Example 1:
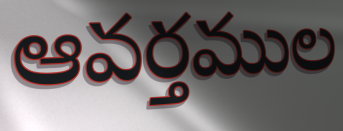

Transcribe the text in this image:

ఆవర్తముల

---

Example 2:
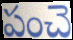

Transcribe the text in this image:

పంచె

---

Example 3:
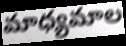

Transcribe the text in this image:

మాధ్యమాల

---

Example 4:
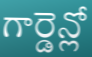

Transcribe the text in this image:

గార్డెన్లో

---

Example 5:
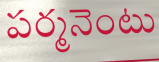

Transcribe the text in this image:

పర్మనెంటు